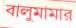
বালুমামার